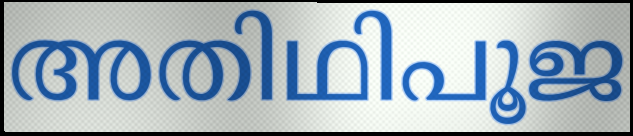
അതിഥിപൂജ